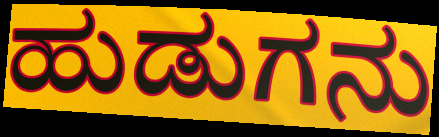
ಹುಡುಗನು